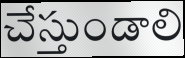
చేస్తుండాలి